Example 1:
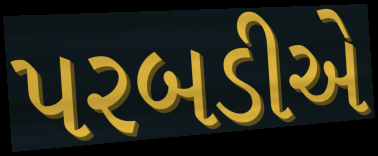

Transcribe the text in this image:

પરબડીએ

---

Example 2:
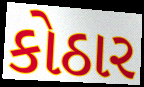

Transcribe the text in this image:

કોઠાર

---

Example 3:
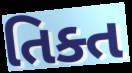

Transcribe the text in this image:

તિક્ત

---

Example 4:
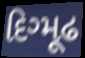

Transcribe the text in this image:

દિગ્મૂઢ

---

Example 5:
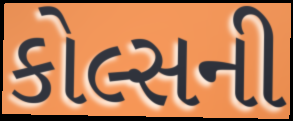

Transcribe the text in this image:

કોલ્સની